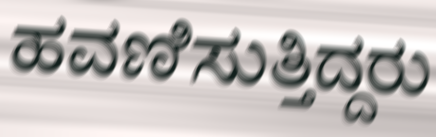
ಹವಣಿಸುತ್ತಿದ್ದರು